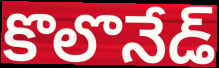
కొలొనేడ్